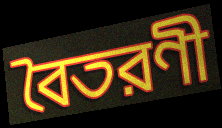
বৈতরণী